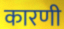
कारणी